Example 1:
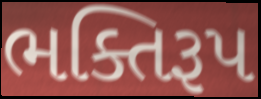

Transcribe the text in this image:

ભક્તિરૂપ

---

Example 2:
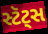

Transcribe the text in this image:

સ્ટૅટ્સ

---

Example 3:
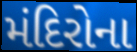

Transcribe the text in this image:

મંદિરોના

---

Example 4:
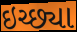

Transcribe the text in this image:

ઇચ્છ્યા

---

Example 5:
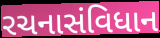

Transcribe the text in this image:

રચનાસંવિધાન